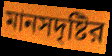
মানসদৃষ্টির